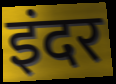
इंदर